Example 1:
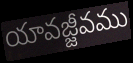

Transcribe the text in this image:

యావజ్జీవము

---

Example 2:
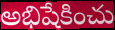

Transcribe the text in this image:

అభిషేకించు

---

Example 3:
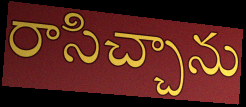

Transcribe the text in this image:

రాసిచ్చాను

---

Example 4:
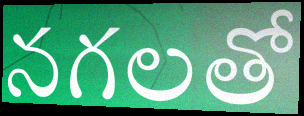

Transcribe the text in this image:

నగలతో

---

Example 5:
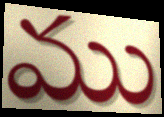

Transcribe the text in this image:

ము